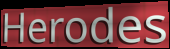
Herodes